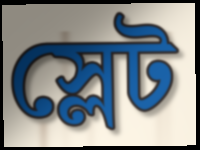
স্লেট